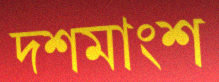
দশমাংশ